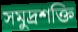
সমুদ্রশক্তি